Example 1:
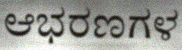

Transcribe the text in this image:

ಆಭರಣಗಳ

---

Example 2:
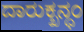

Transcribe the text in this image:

ದಾರುಕ್ಖನ್ಧಂ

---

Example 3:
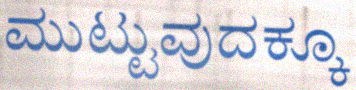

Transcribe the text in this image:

ಮುಟ್ಟುವುದಕ್ಕೂ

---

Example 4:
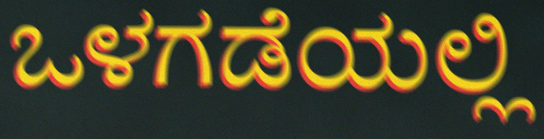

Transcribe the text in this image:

ಒಳಗಡೆಯಲ್ಲಿ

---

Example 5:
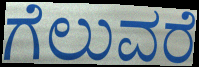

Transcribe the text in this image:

ಗೆಲುವರೆ